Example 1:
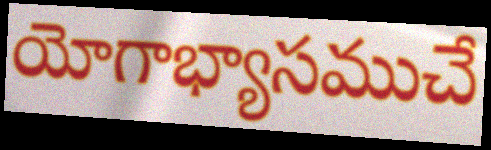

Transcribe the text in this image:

యోగాభ్యాసముచే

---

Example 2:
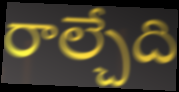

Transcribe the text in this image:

రాల్చేది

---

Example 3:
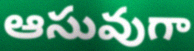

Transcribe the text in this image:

ఆసువుగా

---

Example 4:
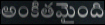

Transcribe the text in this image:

అంకితమైంది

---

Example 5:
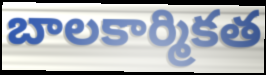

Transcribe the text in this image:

బాలకార్మికత